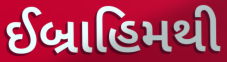
ઈબ્રાહિમથી